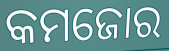
କମଜୋର